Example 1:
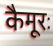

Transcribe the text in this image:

कैमूरः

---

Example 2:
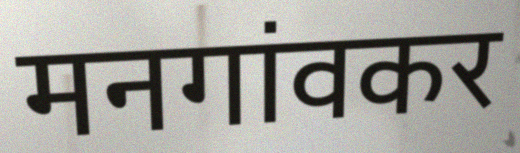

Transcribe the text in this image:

मनगांवकर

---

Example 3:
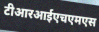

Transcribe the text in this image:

टीआरआईएचएमएस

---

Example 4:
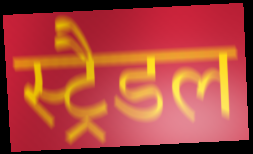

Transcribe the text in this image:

स्ट्रैडल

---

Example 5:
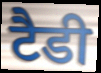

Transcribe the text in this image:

टैडी